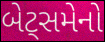
બેટ્સમેનો